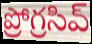
ప్రోగ్రసివ్